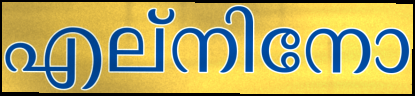
എല്നിനോ